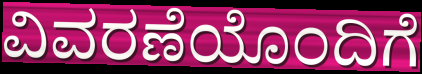
ವಿವರಣೆಯೊಂದಿಗೆ